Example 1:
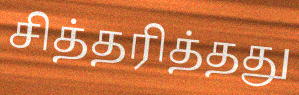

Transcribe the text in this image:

சித்தரித்தது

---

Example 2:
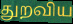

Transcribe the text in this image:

துறவிய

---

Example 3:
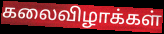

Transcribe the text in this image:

கலைவிழாக்கள்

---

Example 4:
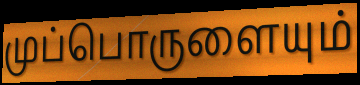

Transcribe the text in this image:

முப்பொருளையும்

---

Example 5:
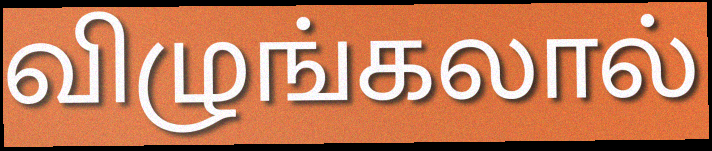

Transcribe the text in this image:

விழுங்கலால்